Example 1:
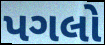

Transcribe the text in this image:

પગલો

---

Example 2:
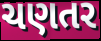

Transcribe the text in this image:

ચણતર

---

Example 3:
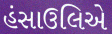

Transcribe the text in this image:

હંસાઉલિએ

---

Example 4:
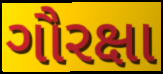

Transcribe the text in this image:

ગૌરક્ષા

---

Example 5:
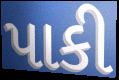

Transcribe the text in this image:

પાકી